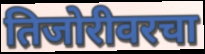
तिजोरीवरचा